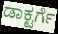
ಡಾಕ್ಟರ್ಗೆ